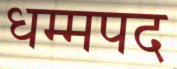
धम्मपद